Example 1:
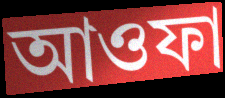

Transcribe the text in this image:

আওফা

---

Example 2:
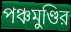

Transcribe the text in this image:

পঞ্চমুণ্ডির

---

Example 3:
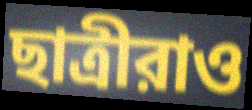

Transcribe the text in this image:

ছাত্রীরাও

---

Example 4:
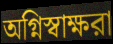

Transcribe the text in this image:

অগ্নিস্বাক্ষরা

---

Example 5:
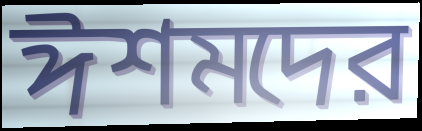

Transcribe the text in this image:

ঈশমদের